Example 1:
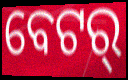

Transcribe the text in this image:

ବେଟର୍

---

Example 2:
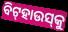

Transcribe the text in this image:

ବିଟ୍‌ହାଉସ୍‌କୁ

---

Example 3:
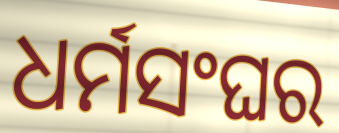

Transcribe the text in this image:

ଧର୍ମସଂଘର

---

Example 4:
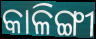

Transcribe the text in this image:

କାଳିଙ୍ଗୀ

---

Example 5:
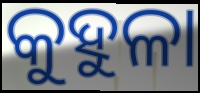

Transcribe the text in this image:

କୁହୁଳା